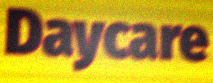
Daycare